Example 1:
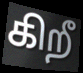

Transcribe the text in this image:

கிறீ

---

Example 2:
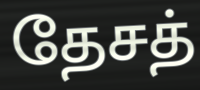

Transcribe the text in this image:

தேசத்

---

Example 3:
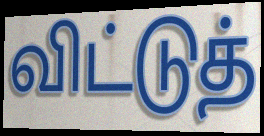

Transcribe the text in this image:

விட்டுத்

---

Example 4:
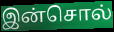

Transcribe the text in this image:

இன்சொல்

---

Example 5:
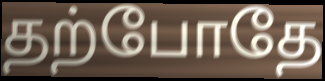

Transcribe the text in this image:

தற்போதே